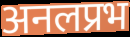
अनलप्रभ